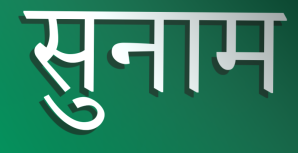
सुनाम